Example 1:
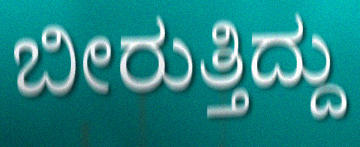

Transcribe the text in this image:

ಬೀರುತ್ತಿದ್ದು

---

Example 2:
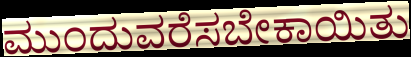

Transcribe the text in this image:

ಮುಂದುವರೆಸಬೇಕಾಯಿತು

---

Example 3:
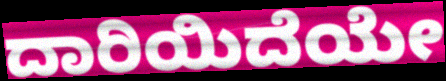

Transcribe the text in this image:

ದಾರಿಯಿದೆಯೇ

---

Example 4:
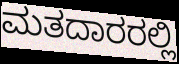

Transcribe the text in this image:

ಮತದಾರರಲ್ಲಿ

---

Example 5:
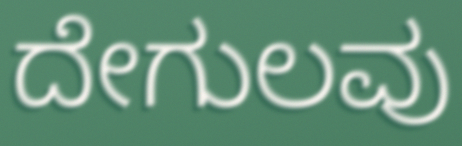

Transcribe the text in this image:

ದೇಗುಲವು